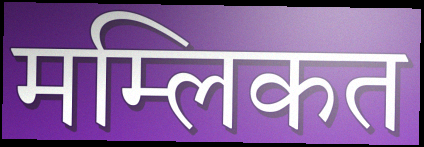
मम्लिकत